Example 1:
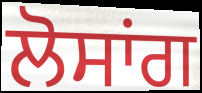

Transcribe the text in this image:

ਲੋਸਾਂਗ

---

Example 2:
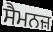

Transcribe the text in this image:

ਸੈਮਨਜ਼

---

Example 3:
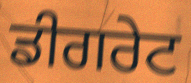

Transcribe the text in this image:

ਡੀਗਰੇਟ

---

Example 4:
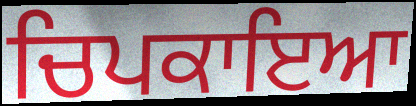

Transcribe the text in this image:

ਚਿਪਕਾਇਆ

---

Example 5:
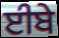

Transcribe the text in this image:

ਈਬੇ